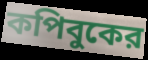
কপিবুকের